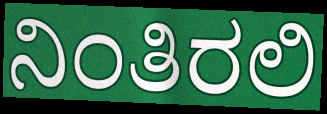
ನಿಂತಿರಲಿ